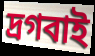
দ্রগবাই